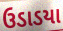
ઉડાડયા